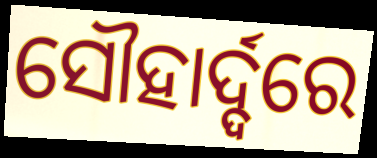
ସୌହାର୍ଦ୍ଦରେ